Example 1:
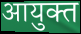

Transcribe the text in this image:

आयुक्‍त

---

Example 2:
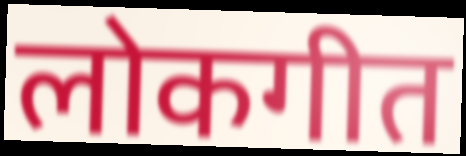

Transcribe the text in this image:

लोकगीत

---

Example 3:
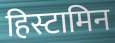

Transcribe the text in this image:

हिस्टामिन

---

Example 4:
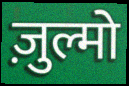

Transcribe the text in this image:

ज़ुल्मो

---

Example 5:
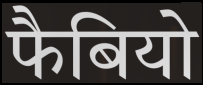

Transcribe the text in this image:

फैबियो